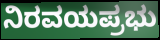
ನಿರವಯಪ್ರಭು